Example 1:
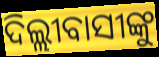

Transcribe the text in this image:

ଦିଲ୍ଲୀବାସୀଙ୍କୁ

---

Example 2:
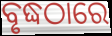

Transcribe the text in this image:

ବୃଦ୍ଧଠାରେ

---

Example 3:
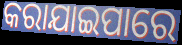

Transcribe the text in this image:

କରାଯାଇପାରେ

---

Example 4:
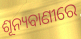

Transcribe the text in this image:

ଶୂନ୍ୟବାଣୀରେ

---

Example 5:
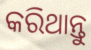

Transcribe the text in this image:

କରିଥାନ୍ତୁ